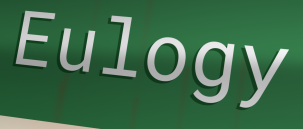
Eulogy